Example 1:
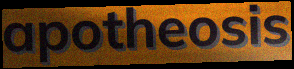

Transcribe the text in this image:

apotheosis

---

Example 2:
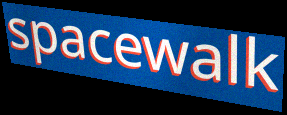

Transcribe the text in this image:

spacewalk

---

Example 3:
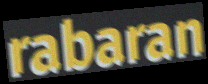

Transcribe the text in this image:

rabaran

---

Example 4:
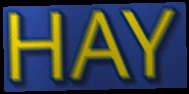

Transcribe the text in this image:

HAY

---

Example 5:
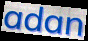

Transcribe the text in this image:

adan